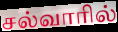
சல்வாரில்